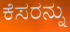
ಕೆಸರನ್ನು